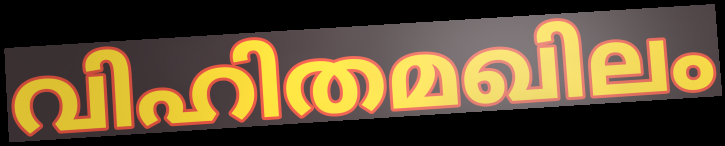
വിഹിതമഖിലം